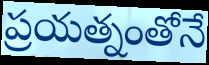
ప్రయత్నంతోనే